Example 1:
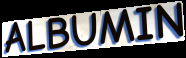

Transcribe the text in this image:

ALBUMIN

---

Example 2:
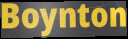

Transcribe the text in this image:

Boynton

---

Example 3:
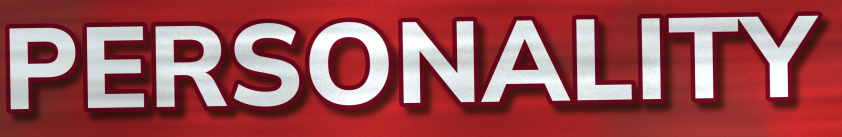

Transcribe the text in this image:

PERSONALITY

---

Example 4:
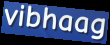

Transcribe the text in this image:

vibhaag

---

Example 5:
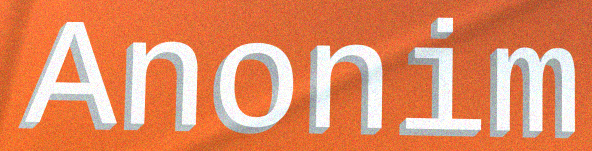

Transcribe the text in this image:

Anonim